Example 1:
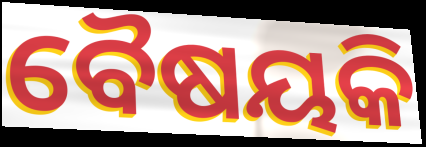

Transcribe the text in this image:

ବୈଷୟକି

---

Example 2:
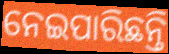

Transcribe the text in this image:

ନେଇପାରିଛନ୍ତି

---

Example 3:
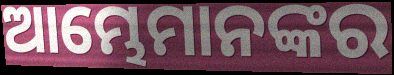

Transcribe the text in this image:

ଆମ୍ଭେମାନଙ୍କର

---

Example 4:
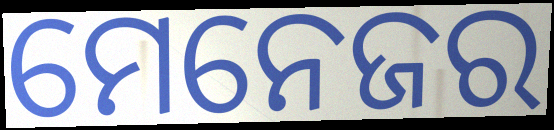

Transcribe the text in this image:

ମେନେଜର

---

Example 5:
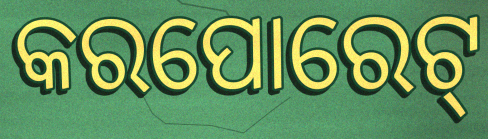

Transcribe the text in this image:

କରପୋରେଟ୍